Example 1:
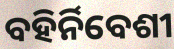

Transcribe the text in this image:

ବହିର୍ନିବେଶୀ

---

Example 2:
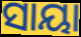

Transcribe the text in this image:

ସାୟା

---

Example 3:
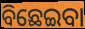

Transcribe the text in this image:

ବିଛେଇବା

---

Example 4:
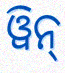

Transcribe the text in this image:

ୱିନ୍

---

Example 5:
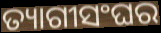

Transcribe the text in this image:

ତ୍ୟାଗୀସଂଘର